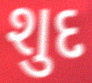
શુદ